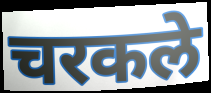
चरकले